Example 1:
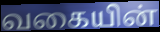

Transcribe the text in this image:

வகையின்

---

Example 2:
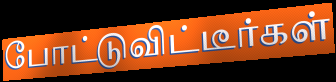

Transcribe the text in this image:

போட்டுவிட்டீர்கள்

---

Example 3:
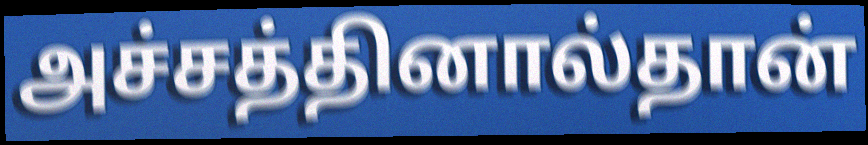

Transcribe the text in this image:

அச்சத்தினால்தான்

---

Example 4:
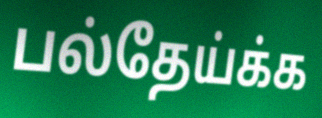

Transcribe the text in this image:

பல்தேய்க்க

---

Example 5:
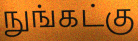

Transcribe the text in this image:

நுங்கட்கு